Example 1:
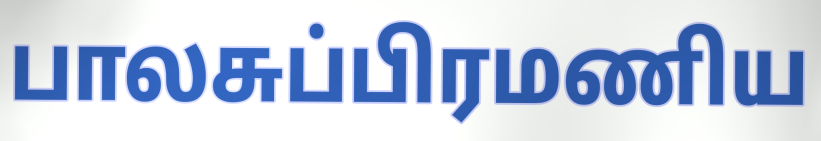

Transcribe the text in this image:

பாலசுப்பிரமணிய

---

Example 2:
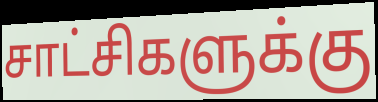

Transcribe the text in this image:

சாட்சிகளுக்கு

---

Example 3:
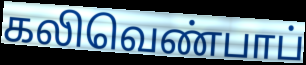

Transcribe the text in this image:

கலிவெண்பாப்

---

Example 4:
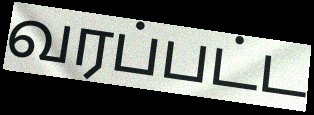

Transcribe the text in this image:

வரப்பட்ட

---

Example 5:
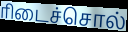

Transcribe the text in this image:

ரிடைச்சொல்